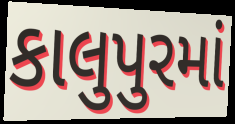
કાલુપુરમાં